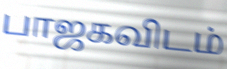
பாஜகவிடம்